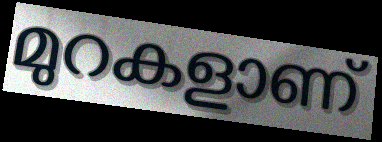
മുറകളാണ്